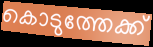
കൊടുത്തേക്ക്